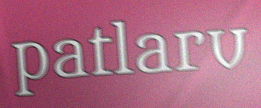
patlaru